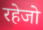
रहेजो